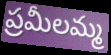
ప్రమీలమ్మ